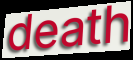
death